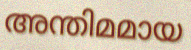
അന്തിമമായ